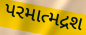
પરમાત્મદ્રશ